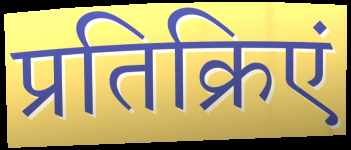
प्रतिक्रिएं